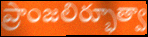
ప్రాంజలిర్భూత్వా